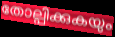
തോല്പിക്കുകയും